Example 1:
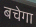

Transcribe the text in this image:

बचेगा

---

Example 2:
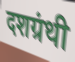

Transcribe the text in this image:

दशग्रंथी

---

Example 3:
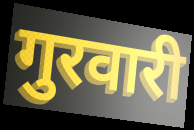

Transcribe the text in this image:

गुरवारी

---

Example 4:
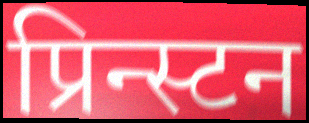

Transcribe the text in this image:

प्रिन्स्टन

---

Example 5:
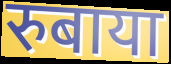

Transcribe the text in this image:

रुबाया